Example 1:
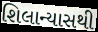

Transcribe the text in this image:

શિલાન્યાસથી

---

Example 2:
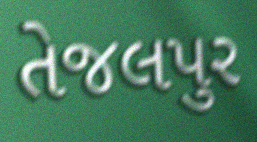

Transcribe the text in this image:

તેજલપુર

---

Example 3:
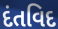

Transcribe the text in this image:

દંતવિદ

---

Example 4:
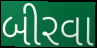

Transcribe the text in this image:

બીરવા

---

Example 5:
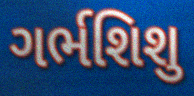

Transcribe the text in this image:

ગર્ભશિશુ